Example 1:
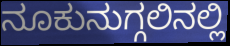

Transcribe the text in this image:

ನೂಕುನುಗ್ಗಲಿನಲ್ಲಿ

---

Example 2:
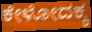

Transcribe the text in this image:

ಕೇಳೋದಕ್ಕ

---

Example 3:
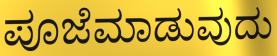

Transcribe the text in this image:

ಪೂಜೆಮಾಡುವುದು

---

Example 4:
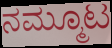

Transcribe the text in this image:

ನಮ್ಮೂಟ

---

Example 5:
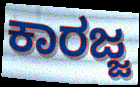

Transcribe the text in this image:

ಕಾರಜ್ಜ